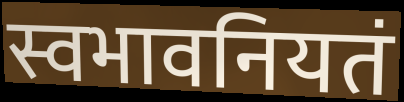
स्वभावनियतं